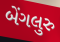
બેંગલુરુ